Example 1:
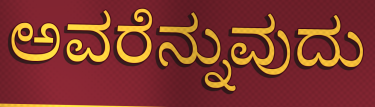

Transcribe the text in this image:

ಅವರೆನ್ನುವುದು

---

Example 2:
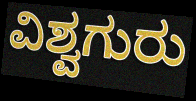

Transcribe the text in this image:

ವಿಶ್ವಗುರು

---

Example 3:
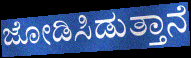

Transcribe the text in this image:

ಜೋಡಿಸಿಡುತ್ತಾನೆ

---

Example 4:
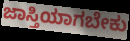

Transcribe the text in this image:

ಜಾಸ್ತಿಯಾಗಬೇಕು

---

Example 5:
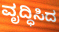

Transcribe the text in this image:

ವೃದ್ಧಿಸಿದ